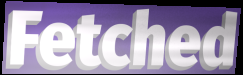
Fetched